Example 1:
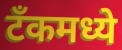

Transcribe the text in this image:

टॅंकमध्ये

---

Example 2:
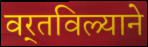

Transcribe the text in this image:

वर्तविल्याने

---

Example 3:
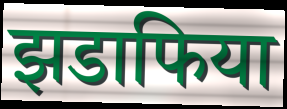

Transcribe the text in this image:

झडाफिया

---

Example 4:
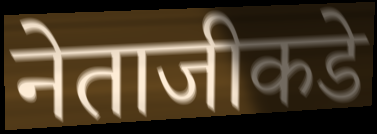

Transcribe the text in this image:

नेताजीकडे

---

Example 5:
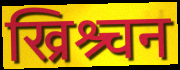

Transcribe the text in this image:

ख्रिश्र्चन